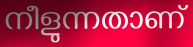
നീളുന്നതാണ്